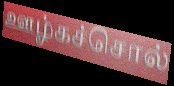
ஊழ்கச்சொல்